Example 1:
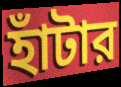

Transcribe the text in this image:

হাঁটার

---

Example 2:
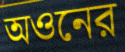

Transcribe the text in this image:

অওনের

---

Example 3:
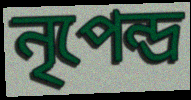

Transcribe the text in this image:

নৃপেন্দ্র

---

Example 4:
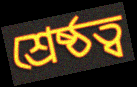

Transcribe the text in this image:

শ্রেষ্ঠত্ব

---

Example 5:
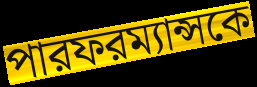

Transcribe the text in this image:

পারফরম্যান্সকে